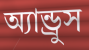
অ্যান্ড্রুস